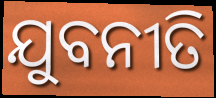
ଯୁବନୀତି